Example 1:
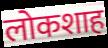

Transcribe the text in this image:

लोकशाह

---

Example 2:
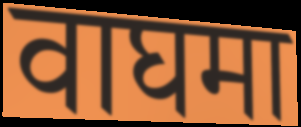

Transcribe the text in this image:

वाघमा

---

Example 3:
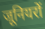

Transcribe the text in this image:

जूनियरों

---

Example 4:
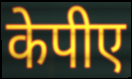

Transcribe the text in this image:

केपीए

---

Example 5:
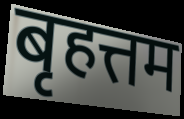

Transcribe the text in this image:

बृहत्तम